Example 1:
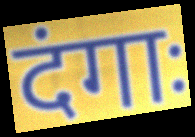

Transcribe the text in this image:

दंगाः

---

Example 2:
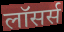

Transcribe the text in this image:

लॉसर्स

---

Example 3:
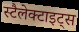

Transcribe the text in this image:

स्टैलेक्टाइट्स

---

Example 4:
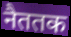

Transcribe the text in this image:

नैततक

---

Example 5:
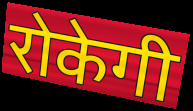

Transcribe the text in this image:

रोकेगी